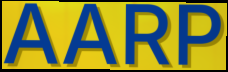
AARP